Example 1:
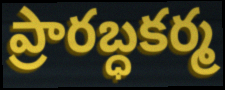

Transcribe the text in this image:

ప్రారబ్ధకర్మ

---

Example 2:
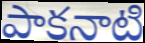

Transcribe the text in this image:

పాకనాటి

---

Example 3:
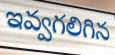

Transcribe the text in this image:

ఇవ్వగలిగిన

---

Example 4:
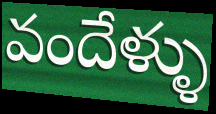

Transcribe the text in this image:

వందేళ్ళు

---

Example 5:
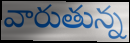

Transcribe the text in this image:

వారుతున్న